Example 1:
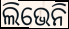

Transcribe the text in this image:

ଲିଭେନି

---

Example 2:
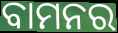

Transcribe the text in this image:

ବାମନର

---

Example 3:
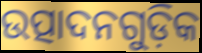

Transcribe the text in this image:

ଉତ୍ପାଦନଗୁଡ଼ିକ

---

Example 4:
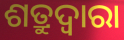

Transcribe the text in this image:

ଶତ୍ରୁଦ୍ଵାରା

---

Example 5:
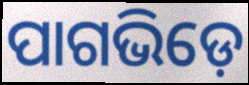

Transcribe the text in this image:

ପାଗଭିଡ଼େ